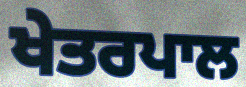
ਖੇਤਰਪਾਲ